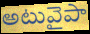
అటువైపా